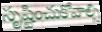
సృష్టించుకోవాల్సి